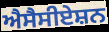
ਐਸੈਸੀਏਸ਼ਨ